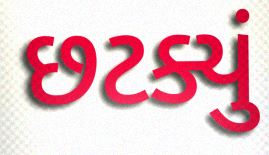
છટક્યું